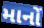
માનોં